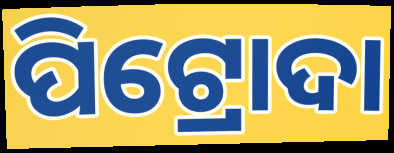
ପିଟ୍ରୋଦା